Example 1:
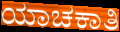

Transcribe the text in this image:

ಯಾಚಕಾತಿ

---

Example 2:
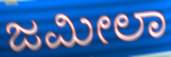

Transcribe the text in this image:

ಜಮೀಲಾ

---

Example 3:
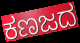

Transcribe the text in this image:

ಕಣಜದ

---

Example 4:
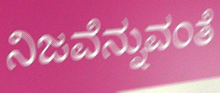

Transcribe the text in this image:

ನಿಜವೆನ್ನುವಂತೆ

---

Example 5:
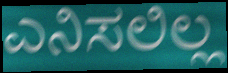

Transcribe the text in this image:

ಎನಿಸಲಿಲ್ಲ